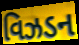
વિઝડન